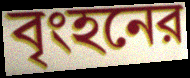
বৃংহনের